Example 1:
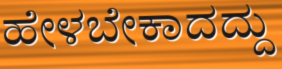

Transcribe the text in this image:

ಹೇಳಬೇಕಾದದ್ದು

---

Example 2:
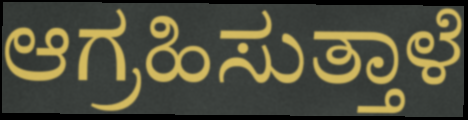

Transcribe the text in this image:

ಆಗ್ರಹಿಸುತ್ತಾಳೆ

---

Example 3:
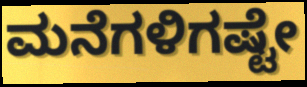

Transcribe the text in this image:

ಮನೆಗಳಿಗಷ್ಟೇ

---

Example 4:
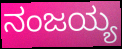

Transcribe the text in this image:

ನಂಜಯ್ಯ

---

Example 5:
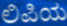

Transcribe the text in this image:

ಲಿಪಿಯ